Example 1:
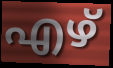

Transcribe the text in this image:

എഴ്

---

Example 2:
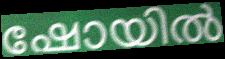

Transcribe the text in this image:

ഷോയിൽ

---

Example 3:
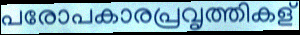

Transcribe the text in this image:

പരോപകാരപ്രവൃത്തികള്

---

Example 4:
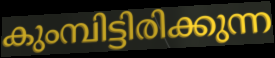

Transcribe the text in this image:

കുംമ്പിട്ടിരിക്കുന്ന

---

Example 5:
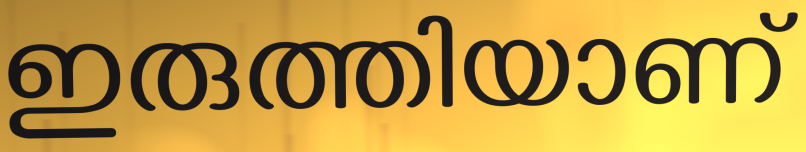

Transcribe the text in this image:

ഇരുത്തിയാണ്